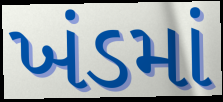
ખંડમાં